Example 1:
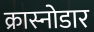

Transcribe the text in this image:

क्रास्नोडार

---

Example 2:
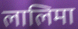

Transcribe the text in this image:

लालिमा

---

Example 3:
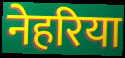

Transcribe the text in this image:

नेहरिया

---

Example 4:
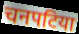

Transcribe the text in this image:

चनपटिया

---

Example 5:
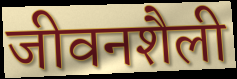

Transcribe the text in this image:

जीवनशैली